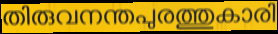
തിരുവനന്തപുരത്തുകാരി